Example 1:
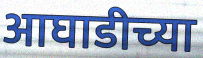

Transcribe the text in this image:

आघाडीच्या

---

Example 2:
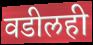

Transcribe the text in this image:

वडीलही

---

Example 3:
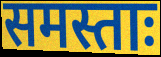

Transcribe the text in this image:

समस्ताः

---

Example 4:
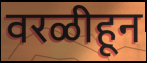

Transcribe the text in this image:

वरळीहून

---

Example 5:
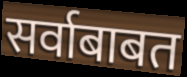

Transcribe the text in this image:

सर्वाबाबत